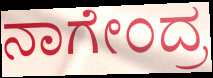
ನಾಗೇಂದ್ರ